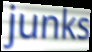
junks